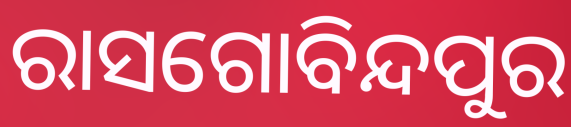
ରାସଗୋବିନ୍ଦପୁର